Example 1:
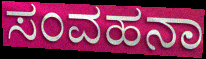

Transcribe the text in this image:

ಸಂವಹನಾ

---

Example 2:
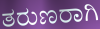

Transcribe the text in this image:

ತರುಣರಾಗಿ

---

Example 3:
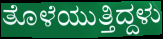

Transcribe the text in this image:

ತೊಳೆಯುತ್ತಿದ್ದಳು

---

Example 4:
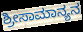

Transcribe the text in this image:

ಶ್ರೀಸಾಮಾನ್ಯನ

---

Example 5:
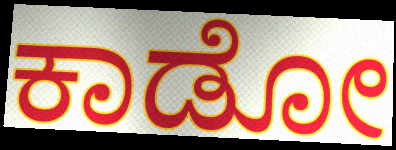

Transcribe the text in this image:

ಕಾಡೋ